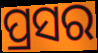
ପ୍ରସର